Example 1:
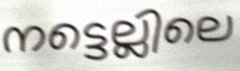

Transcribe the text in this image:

നട്ടെല്ലിലെ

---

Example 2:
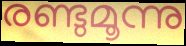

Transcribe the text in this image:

രണ്ടുമൂന്നു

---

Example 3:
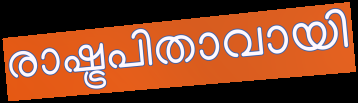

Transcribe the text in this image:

രാഷ്ട്രപിതാവായി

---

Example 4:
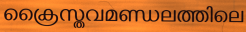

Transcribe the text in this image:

ക്രൈസ്തവമണ്ഡലത്തിലെ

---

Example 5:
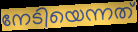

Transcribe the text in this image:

നേടിയെന്നത്